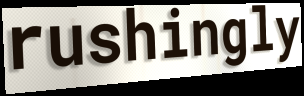
rushingly